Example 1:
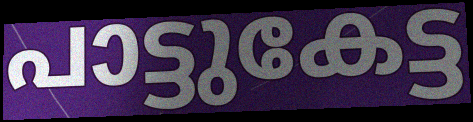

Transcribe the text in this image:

പാട്ടുകേട്ട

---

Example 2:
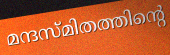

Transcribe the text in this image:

മന്ദസ്മിതത്തിന്റെ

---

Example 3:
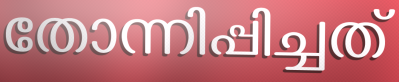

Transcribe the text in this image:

തോന്നിപ്പിച്ചത്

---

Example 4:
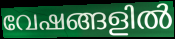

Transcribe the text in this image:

വേഷങ്ങളിൽ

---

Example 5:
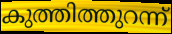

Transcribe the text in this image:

കുത്തിത്തുറന്ന്